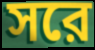
সরে